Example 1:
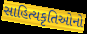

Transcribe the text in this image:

સાહિત્યકૃતિઓનો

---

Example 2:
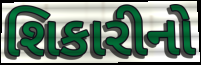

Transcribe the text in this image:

શિકારીનો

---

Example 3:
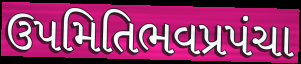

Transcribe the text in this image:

ઉપમિતિભવપ્રપંચા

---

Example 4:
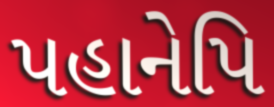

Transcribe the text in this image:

પહાનેપિ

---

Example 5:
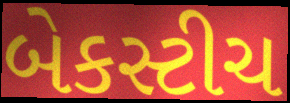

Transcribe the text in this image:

બેકસ્ટીચ